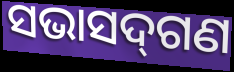
ସଭାସଦ୍‌ଗଣ